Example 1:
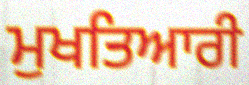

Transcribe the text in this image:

ਮੁਖਤਿਆਰੀ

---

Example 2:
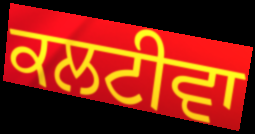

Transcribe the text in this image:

ਕਲਟੀਵਾ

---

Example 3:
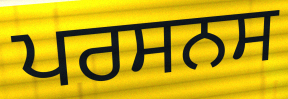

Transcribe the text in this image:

ਪਰਸਨਸ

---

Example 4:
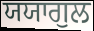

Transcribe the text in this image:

ਯਯਾਗੁਲ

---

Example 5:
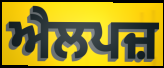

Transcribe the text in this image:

ਐਲਪਜ਼